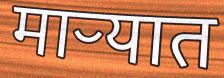
माऱ्यात